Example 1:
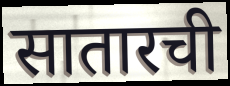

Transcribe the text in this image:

सातारची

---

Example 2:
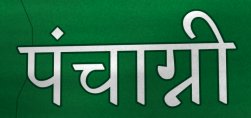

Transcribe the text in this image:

पंचाग्नी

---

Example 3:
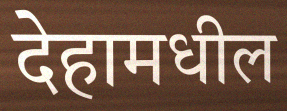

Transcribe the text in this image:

देहामधील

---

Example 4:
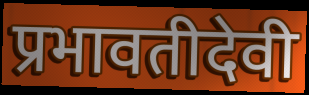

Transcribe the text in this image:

प्रभावतीदेवी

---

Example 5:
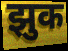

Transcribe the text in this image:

झुक